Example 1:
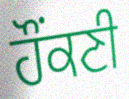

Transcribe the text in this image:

ਹੌਂਕਣੀ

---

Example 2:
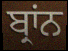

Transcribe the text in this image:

ਬ੍ਰਾਂਨ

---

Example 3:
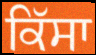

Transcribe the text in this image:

ਕਿੱਸਾ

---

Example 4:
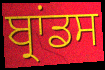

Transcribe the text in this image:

ਬ੍ਰਾਂਡਸ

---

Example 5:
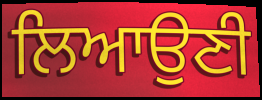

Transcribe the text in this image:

ਲਿਆਉਣੀ